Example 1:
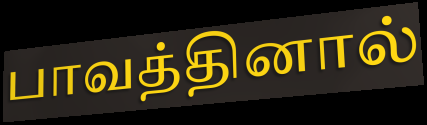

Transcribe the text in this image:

பாவத்தினால்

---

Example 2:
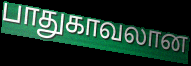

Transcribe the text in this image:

பாதுகாவலான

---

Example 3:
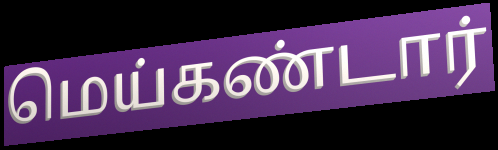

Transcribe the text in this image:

மெய்கண்டார்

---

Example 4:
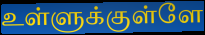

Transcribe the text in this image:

உள்ளுக்குள்ளே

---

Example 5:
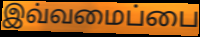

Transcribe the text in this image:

இவ்வமைப்பை